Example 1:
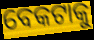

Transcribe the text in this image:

ବେକଟାକୁ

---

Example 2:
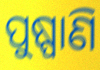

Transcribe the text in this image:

ପୁଷ୍ପାଣି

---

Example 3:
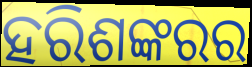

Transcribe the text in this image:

ହରିଶଙ୍କରର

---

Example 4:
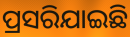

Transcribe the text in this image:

ପ୍ରସରିଯାଇଛି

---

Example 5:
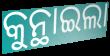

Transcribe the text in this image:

କୁନ୍ଥାଇଲା